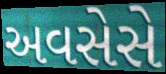
અવસેસે